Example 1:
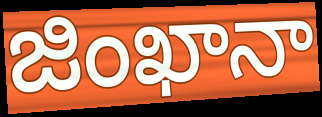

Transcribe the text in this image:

జింఖానా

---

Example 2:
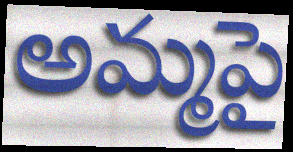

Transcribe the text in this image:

అమ్మపై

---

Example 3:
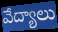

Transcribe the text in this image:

వేద్యాలు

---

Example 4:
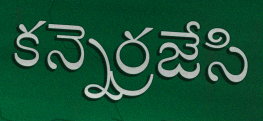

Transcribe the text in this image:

కన్నెర్రజేసి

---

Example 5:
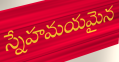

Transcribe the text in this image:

స్నేహమయమైన